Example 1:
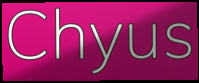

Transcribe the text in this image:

Chyus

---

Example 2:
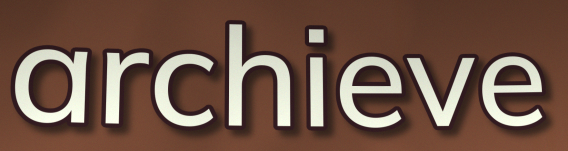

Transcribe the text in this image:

archieve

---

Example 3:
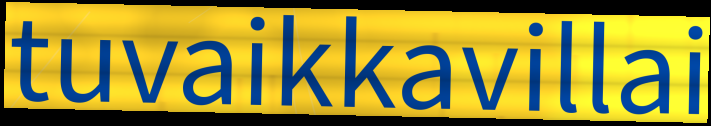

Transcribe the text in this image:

tuvaikkavillai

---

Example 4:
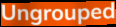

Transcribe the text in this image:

Ungrouped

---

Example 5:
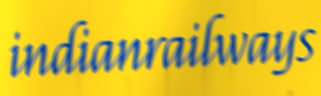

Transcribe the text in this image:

indianrailways